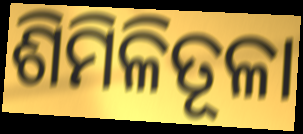
ଶିମିଳିତୂଳା